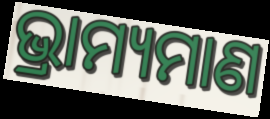
ଭ୍ରାମ୍ୟମାଣ